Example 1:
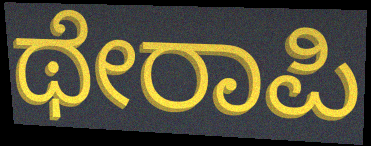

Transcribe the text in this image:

ಥೇರಾಪಿ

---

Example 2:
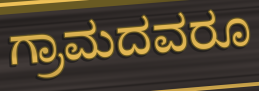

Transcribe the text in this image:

ಗ್ರಾಮದವರೂ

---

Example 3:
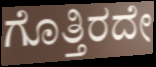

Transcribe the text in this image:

ಗೊತ್ತಿರದೇ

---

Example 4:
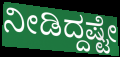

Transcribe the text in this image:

ನೀಡಿದ್ದಷ್ಟೇ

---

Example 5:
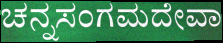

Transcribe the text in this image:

ಚನ್ನಸಂಗಮದೇವಾ